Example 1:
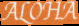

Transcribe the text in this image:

ALOHA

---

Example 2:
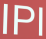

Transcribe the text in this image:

IPI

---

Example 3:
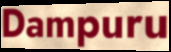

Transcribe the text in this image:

Dampuru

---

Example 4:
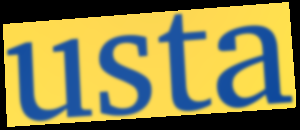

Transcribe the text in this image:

usta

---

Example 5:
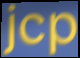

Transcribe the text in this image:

jcp